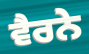
ਵੈਰਨੇ